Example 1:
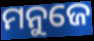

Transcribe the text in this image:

ମନୁଜେ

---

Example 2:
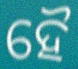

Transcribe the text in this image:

ହୈ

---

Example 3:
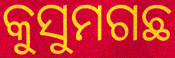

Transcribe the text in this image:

କୁସୁମଗଛ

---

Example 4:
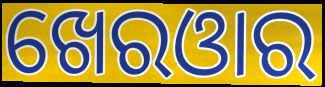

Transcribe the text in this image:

ଖେରଓାର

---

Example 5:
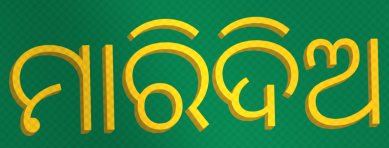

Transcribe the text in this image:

ମାରିଦିଅ